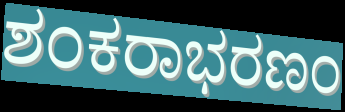
ಶಂಕರಾಭರಣಂ